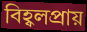
বিহ্বলপ্রায়